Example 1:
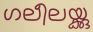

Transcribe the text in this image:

ഗലീലയ്ക്കു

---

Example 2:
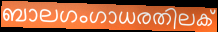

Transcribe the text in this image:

ബാലഗംഗാധരതിലക്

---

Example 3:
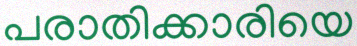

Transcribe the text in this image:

പരാതിക്കാരിയെ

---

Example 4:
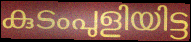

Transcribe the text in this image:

കുടംപുളിയിട്ട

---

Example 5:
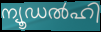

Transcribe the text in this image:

ന്യൂഡൽഹി